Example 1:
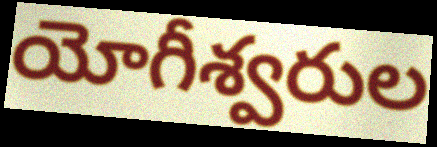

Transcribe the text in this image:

యోగీశ్వరుల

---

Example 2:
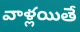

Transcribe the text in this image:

వాళ్లయితే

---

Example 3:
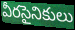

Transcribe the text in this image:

వీరసైనికులు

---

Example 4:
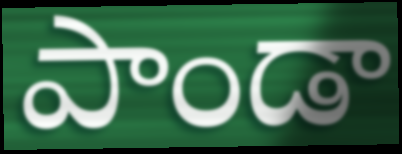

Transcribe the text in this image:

పాండా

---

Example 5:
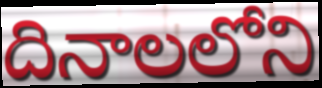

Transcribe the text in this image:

దినాలలోని